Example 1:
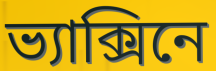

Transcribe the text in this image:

ভ্যাক্সিনে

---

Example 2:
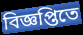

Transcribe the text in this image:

বিজ্ঞপ্তিতে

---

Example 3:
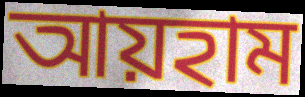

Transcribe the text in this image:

আয়হাম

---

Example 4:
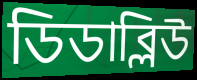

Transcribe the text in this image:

ডিডাব্লিউ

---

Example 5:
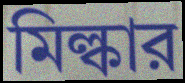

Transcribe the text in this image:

মিল্কার